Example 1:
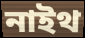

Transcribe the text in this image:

নাইথ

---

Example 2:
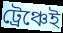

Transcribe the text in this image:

ট্রেঞ্চেই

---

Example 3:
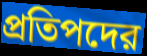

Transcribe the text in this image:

প্রতিপদের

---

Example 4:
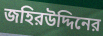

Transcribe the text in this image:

জহিরউদ্দিনের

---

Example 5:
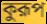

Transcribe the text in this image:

কুরূপ